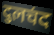
दुलचंद